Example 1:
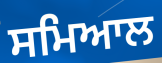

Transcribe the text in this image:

ਸਮਿਆਲ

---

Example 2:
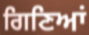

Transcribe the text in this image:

ਗਿਣਿਆਂ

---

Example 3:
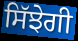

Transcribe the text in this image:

ਸਿੱਝੇਗੀ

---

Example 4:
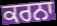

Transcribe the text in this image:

ਕਰਨਾ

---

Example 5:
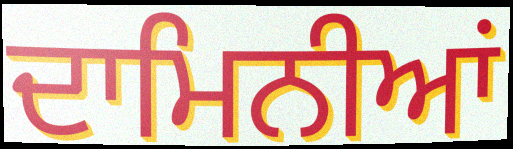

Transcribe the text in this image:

ਦਾਮਿਨੀਆਂ